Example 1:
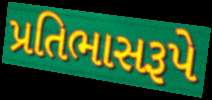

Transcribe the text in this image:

પ્રતિભાસરૂપે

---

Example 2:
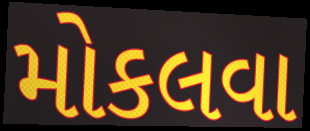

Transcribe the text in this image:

મોકલવા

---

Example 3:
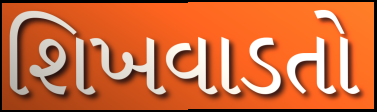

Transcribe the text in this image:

શિખવાડતો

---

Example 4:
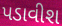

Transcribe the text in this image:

પડાવીશ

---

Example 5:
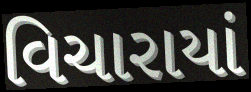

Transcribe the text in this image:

વિચારાયાં